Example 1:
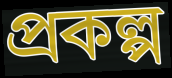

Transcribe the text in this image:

প্ৰকল্প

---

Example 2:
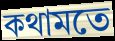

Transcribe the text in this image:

কথামতে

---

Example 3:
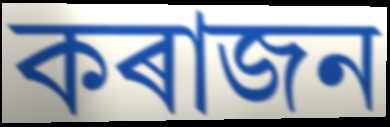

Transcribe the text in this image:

কৰাজন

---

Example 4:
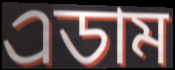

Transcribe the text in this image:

এডাম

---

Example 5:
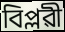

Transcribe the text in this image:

বিপ্লৱী